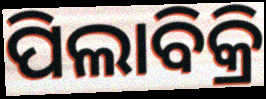
ପିଲାବିକ୍ରି